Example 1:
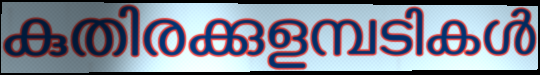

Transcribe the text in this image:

കുതിരക്കുളമ്പടികൾ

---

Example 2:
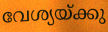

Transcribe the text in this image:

വേശ്യയ്ക്കു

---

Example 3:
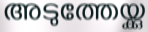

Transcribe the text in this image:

അടുത്തേയ്ക്കു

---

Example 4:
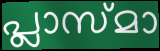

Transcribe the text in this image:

പ്ലാസ്മാ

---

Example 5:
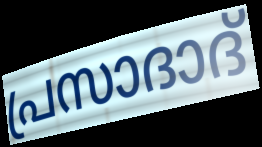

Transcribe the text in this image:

പ്രസാദാദ്